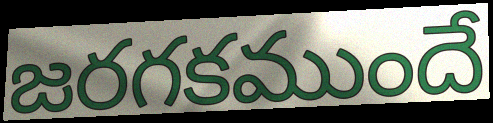
జరగకముందే